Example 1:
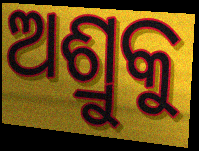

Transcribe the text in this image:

ଅଶ୍ରୁକୁ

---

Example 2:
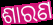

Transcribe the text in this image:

ଶାରଣ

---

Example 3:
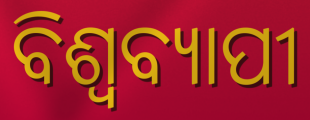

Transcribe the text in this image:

ବିଶ୍ୱବ୍ୟାପୀ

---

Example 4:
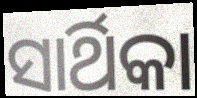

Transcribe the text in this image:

ସାର୍ଥିକା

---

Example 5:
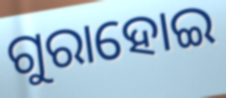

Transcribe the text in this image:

ଗୁରାହୋଇ